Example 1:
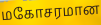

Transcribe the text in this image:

மகோசரமான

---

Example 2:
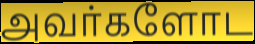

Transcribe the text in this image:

அவர்களோட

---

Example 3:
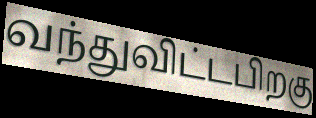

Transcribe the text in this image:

வந்துவிட்டபிறகு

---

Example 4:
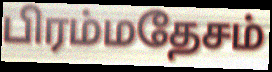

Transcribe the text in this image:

பிரம்மதேசம்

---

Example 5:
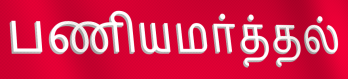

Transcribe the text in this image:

பணியமர்த்தல்